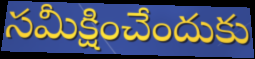
సమీక్షించేందుకు